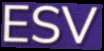
ESV